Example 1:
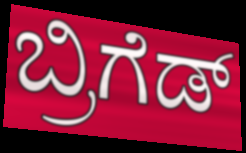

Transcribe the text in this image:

ಬ್ರಿಗೆಡ್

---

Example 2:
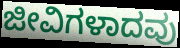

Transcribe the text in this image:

ಜೀವಿಗಳಾದವು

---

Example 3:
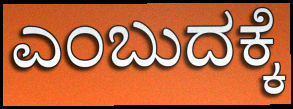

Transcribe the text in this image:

ಎಂಬುದಕ್ಕೆ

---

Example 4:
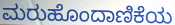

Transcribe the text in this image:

ಮರುಹೊಂದಾಣಿಕೆಯ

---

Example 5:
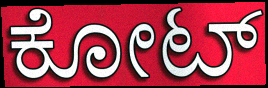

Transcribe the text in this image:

ಕೋಟ್